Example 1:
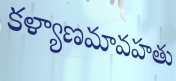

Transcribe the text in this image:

కళ్యాణమావహతు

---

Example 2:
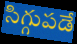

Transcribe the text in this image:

సిగ్గుపడే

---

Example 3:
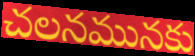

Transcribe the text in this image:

చలనమునకు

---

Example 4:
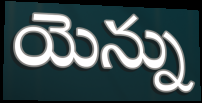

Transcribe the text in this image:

యెన్ను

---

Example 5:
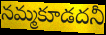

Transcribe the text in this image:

నమ్మకూడదనీ